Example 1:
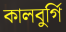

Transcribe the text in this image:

কালবুর্গি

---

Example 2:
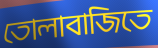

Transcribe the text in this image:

তোলাবাজিতে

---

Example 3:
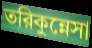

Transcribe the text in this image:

তরিকুন্নেসা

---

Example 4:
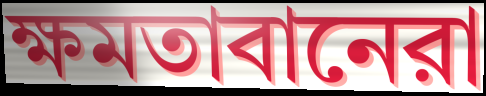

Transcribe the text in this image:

ক্ষমতাবানেরা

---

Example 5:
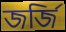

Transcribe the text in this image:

জর্জি